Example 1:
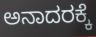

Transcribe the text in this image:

ಅನಾದರಕ್ಕೆ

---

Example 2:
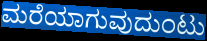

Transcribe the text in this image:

ಮರೆಯಾಗುವುದುಂಟು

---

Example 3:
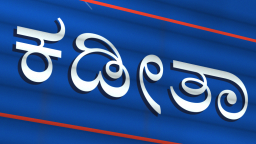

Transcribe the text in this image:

ಕಡೀತಾ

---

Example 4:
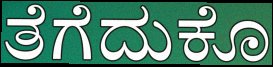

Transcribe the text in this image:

ತೆಗೆದುಕೊ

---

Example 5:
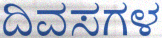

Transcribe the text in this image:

ದಿವಸಗಳ